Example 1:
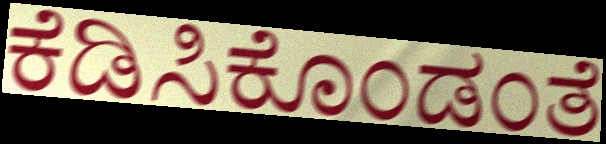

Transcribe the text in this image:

ಕೆಡಿಸಿಕೊಂಡಂತೆ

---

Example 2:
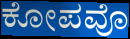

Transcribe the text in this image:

ಕೋಪವೊ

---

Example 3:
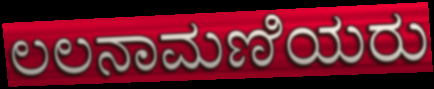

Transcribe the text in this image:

ಲಲನಾಮಣಿಯರು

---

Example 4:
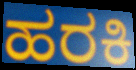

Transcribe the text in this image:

ಹರಕಿ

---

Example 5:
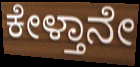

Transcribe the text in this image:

ಕೇಳ್ತಾನೇ